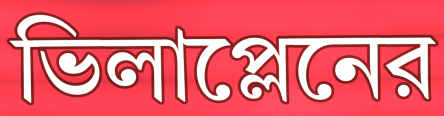
ভিলাপ্লেনের